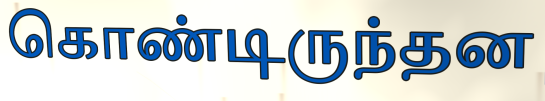
கொண்டிருந்தன